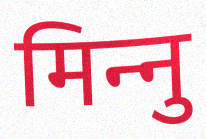
मिन्नु